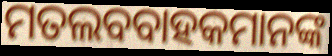
ମତଲବବାହକମାନଙ୍କ